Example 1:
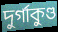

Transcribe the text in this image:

দুর্গাকুণ্ড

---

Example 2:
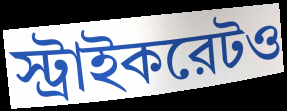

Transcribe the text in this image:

স্ট্রাইকরেটও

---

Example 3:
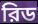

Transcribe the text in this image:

রিড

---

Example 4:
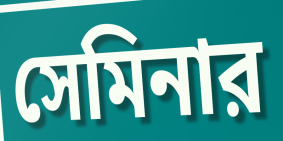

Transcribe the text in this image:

সেমিনার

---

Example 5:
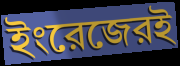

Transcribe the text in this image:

ইংরেজেরই